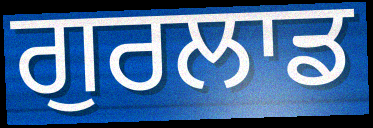
ਗੁਰਲਾਡ